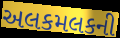
અલકમલકની